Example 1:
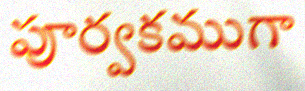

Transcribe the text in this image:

పూర్వకముగా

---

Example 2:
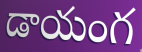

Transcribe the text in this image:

డాయంగ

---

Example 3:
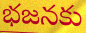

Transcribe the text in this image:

భజనకు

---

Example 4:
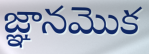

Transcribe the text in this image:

జ్ఞానమొక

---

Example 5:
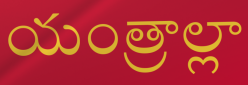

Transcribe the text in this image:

యంత్రాల్లా